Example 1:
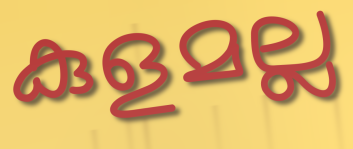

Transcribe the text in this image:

കുളമല്ല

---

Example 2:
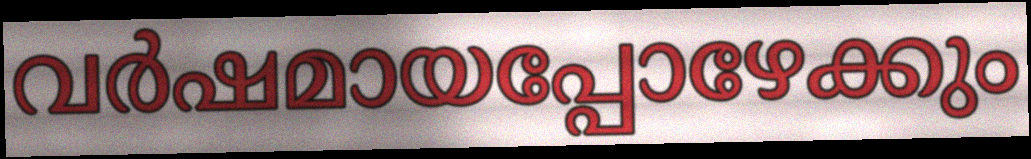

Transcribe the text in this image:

വർഷമായപ്പോഴേക്കും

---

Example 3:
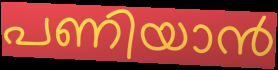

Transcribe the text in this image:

പണിയാൻ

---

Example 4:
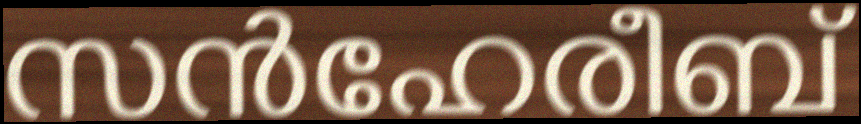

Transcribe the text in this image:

സൻഹേരീബ്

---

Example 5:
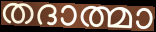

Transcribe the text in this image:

തദാത്മാ